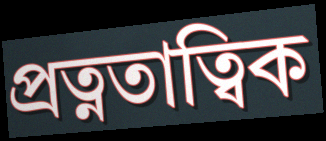
প্ৰত্নতাত্বিক